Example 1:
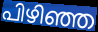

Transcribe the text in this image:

പിഴിഞ്ഞ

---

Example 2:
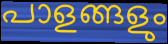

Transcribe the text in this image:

പാളങ്ങളും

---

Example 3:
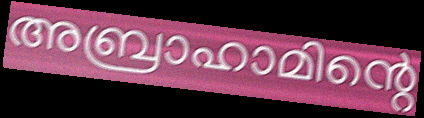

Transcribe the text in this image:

അബ്രാഹാമിന്റെ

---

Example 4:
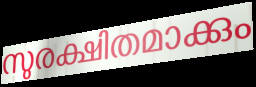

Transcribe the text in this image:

സുരക്ഷിതമാക്കും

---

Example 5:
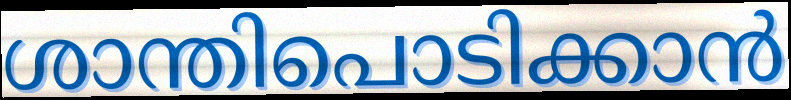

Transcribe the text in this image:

ശാന്തിപൊടിക്കാൻ